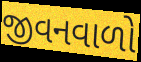
જીવનવાળો